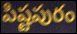
పిష్టపురం